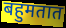
बहुमतात